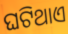
ଘଟିଥାଏ